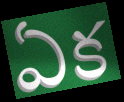
ఏక